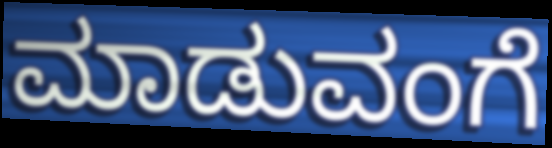
ಮಾಡುವಂಗೆ